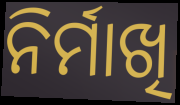
ନିର୍ମାଖି